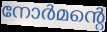
നോർമന്റെ